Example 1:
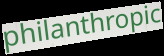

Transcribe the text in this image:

philanthropic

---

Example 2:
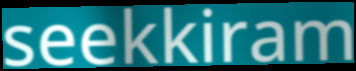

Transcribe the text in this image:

seekkiram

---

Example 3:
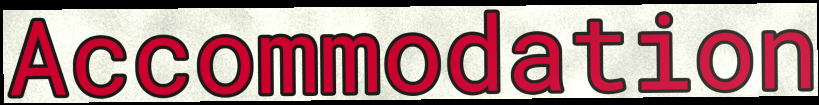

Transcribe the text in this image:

Accommodation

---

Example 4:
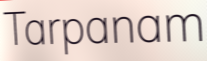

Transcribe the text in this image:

Tarpanam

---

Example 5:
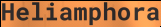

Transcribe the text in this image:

Heliamphora